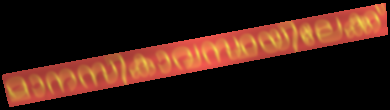
മാനസികാവസ്ഥയിലേക്ക്